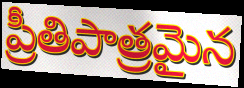
ప్రీతిపాత్రమైన